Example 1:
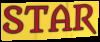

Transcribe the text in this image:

STAR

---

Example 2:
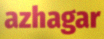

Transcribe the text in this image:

azhagar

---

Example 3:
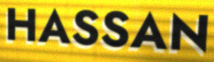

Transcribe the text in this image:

HASSAN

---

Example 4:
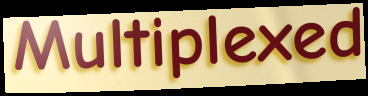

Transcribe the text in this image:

Multiplexed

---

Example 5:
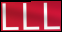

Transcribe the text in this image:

LLL